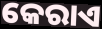
କେରାଏ